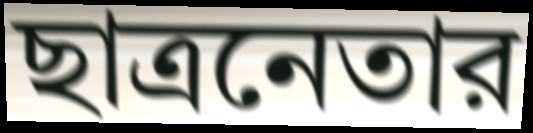
ছাত্রনেতার